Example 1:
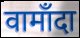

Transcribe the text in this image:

वामाँदा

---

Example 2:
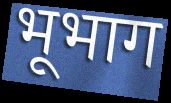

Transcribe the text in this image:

भूभाग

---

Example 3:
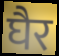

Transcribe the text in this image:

घैर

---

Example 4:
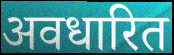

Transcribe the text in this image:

अवधारित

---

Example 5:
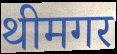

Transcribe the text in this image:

थीमगर